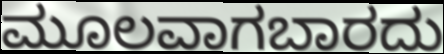
ಮೂಲವಾಗಬಾರದು